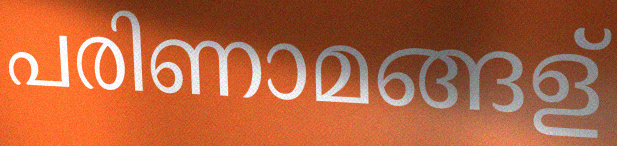
പരിണാമങ്ങള്